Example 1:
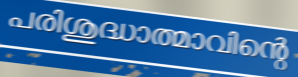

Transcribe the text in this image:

പരിശുദ്ധാത്മാവിന്റെ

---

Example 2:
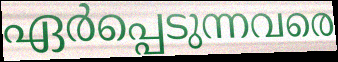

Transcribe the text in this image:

ഏർപ്പെടുന്നവരെ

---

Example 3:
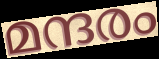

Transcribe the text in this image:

മന്ദരം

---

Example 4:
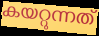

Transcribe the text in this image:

കയറ്റുന്നത്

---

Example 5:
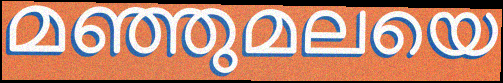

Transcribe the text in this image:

മഞ്ഞുമലയെ